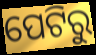
ପେଟିରୁ